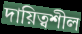
দায়িত্বশীল